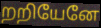
றறியேனே